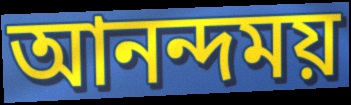
আনন্দময়